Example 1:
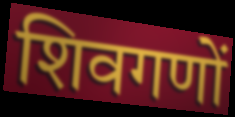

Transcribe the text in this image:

शिवगणों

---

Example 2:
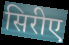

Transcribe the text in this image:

सिरीए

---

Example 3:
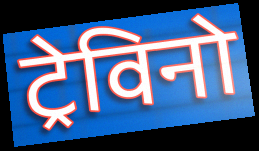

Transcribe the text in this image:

ट्रेविनो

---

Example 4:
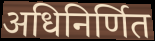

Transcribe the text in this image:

अधिनिर्णित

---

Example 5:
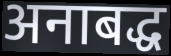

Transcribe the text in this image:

अनाबद्ध